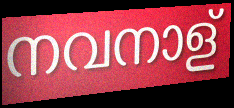
നവനാള്